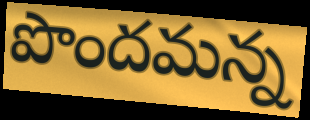
పొందమన్న